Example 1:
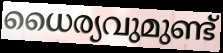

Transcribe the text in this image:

ധൈര്യവുമുണ്ട്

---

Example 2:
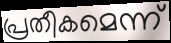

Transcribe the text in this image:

പ്രതീകമെന്ന്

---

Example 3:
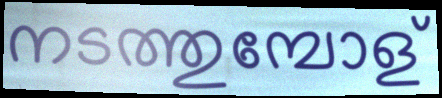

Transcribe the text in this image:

നടത്തുമ്പോള്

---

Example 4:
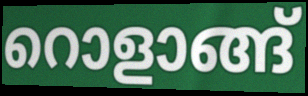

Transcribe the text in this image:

റൊളാങ്ങ്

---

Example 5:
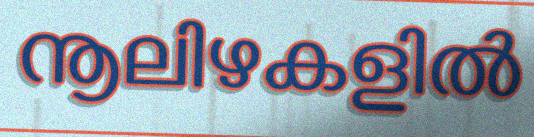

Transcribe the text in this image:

നൂലിഴകളിൽ